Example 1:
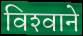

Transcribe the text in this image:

विश्वाने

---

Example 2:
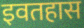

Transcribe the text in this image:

इवतहास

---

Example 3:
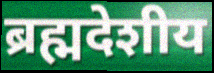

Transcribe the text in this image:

ब्रह्मदेशीय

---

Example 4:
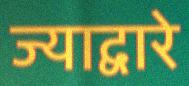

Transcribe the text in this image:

ज्याद्वारे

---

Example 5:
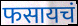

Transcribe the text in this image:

फसायचं